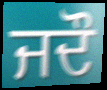
ਜਦੌ